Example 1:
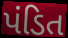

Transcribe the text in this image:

પંડિત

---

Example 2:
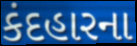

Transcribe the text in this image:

કંદહારના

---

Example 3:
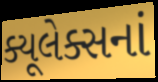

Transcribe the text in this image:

ક્યૂલેક્સનાં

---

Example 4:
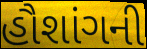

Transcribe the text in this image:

હૌશાંગની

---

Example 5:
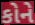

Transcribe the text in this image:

કોને